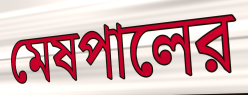
মেষপালের